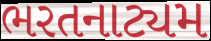
ભરતનાટ્યમ